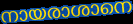
നായരാശാനെ